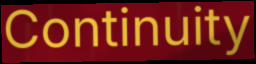
Continuity